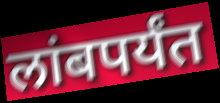
लांबपर्यंत